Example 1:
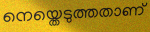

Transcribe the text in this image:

നെയ്തെടുത്തതാണ്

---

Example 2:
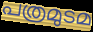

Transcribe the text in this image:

പത്രമുടമ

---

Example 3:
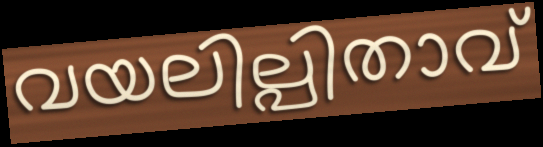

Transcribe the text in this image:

വയലില്പിതാവ്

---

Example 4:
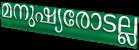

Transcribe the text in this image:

മനുഷ്യരോടല്ല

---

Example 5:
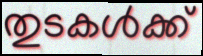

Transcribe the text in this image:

തുടകൾക്ക്